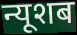
न्यूशब